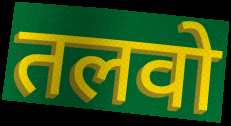
तलवो